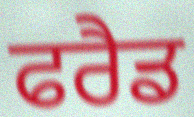
ਫਰੈਡ